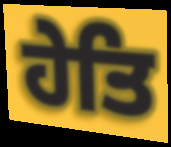
ਹੇਤਿ